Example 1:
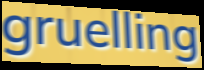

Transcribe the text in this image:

gruelling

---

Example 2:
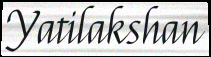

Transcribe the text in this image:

Yatilakshan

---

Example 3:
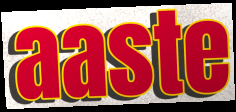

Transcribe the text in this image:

aaste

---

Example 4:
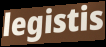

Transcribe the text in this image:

legistis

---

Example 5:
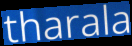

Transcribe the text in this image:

tharala